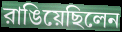
রাঙিয়েছিলেন